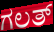
ಗಲತ್